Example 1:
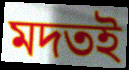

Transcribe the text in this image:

মদতই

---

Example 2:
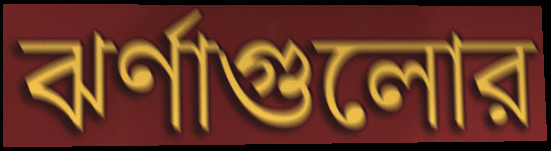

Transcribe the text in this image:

ঝর্ণাগুলোর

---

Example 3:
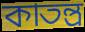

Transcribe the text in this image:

কাতন্ত্র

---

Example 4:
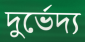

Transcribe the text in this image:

দুর্ভেদ্য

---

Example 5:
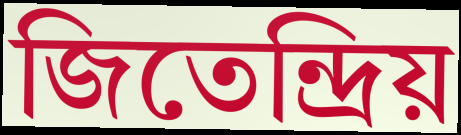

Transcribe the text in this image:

জিতেন্দ্রিয়